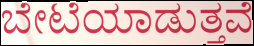
ಬೇಟೆಯಾಡುತ್ತವೆ